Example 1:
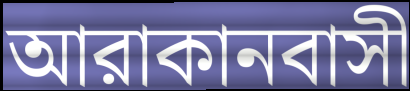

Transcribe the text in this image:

আরাকানবাসী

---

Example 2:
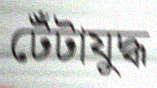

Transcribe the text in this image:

টেঁটাযুদ্ধ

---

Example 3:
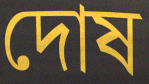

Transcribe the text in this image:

দোষ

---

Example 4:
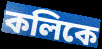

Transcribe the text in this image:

কলিকে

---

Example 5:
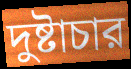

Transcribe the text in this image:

দুষ্টাচার